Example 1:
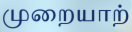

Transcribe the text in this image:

முறையாற்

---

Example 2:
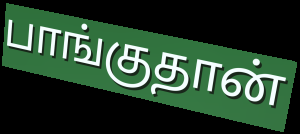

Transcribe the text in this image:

பாங்குதான்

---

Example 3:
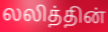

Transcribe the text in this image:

லலித்தின்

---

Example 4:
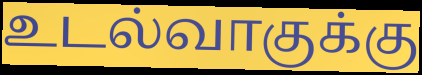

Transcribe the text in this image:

உடல்வாகுக்கு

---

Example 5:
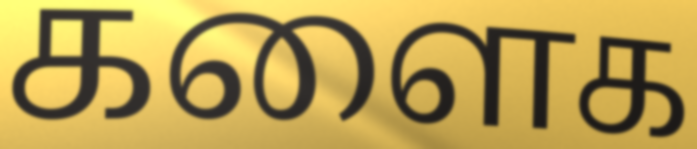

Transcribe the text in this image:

களைக